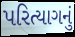
પરિત્યાગનું